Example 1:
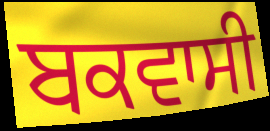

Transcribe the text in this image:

ਬਕਵਾਸੀ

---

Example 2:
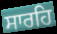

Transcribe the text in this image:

ਸਾਰਹਿ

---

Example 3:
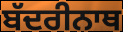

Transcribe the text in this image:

ਬੱਦਰੀਨਾਥ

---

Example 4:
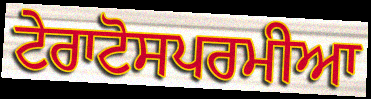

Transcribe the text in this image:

ਟੇਰਾਟੋਸਪਰਮੀਆ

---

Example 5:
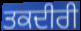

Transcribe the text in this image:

ਤਕਦੀਰੀ